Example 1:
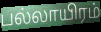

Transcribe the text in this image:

பல்லாயிரம்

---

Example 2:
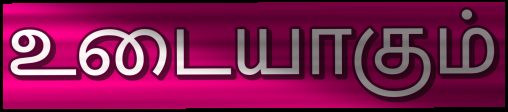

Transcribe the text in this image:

உடையாகும்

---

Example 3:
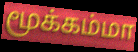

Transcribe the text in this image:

மூக்கம்மா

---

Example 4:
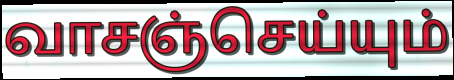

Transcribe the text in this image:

வாசஞ்செய்யும்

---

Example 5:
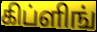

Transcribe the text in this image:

கிப்ளிங்